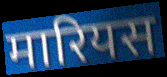
मारियस